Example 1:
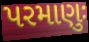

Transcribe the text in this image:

પરમાણુઃ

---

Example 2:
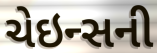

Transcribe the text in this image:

ચેઇન્સની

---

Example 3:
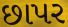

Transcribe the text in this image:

છાપર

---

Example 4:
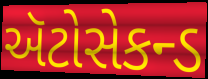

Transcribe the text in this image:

ઍટોસેકન્ડ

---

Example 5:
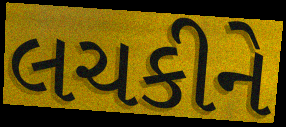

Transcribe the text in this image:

લચકીને